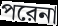
পরেনা